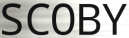
SCOBY